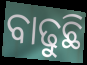
ବାଢୁଛି